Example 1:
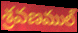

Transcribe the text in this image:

శ్రవణముల్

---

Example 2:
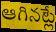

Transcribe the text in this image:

ఆగినట్లే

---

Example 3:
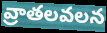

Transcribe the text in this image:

వ్రాతలవలన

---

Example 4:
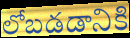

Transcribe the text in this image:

లోబడడానికి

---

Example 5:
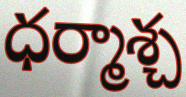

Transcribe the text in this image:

ధర్మాశ్చ